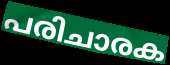
പരിചാരക